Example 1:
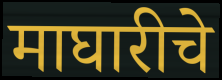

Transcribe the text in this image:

माघारीचे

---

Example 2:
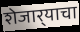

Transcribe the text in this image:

शेजार्‍याचा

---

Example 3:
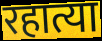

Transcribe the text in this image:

रहात्या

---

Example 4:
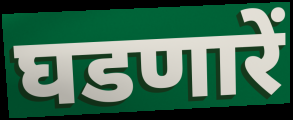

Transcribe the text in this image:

घडणारें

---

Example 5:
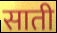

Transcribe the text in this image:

साती